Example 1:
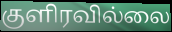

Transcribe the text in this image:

குளிரவில்லை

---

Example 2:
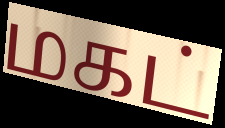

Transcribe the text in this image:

மகட்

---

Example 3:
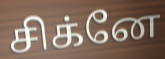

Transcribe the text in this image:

சிக்னே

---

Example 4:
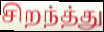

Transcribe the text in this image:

சிறந்த்து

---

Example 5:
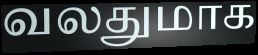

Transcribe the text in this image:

வலதுமாக